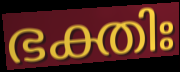
ഭക്തിഃ